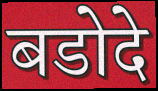
बडोदे